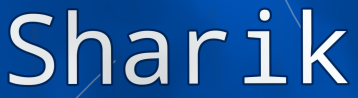
Sharik